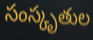
సంస్కృతుల